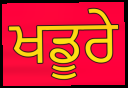
ਖਡੂਰੇ